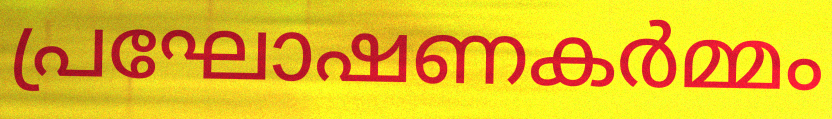
പ്രഘോഷണകർമ്മം